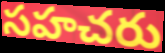
సహచరు